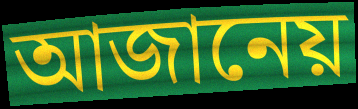
আজানেয়